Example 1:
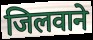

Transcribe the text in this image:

जिलवाने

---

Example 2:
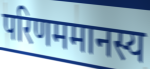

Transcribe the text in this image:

परिणममानस्य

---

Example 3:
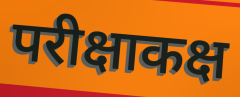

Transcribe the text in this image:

परीक्षाकक्ष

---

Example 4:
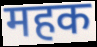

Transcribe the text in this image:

महक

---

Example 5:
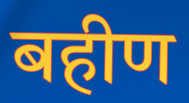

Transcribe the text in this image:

बहीण